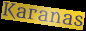
Karanas